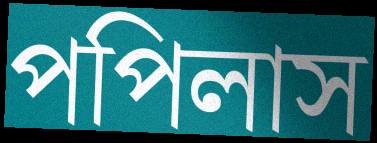
পপিলাস